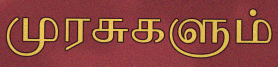
முரசுகளும்